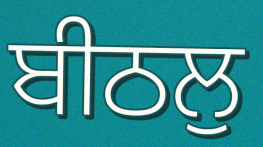
ਬੀਠਲੁ